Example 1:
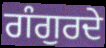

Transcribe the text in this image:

ਗੰਗੁਰਦੇ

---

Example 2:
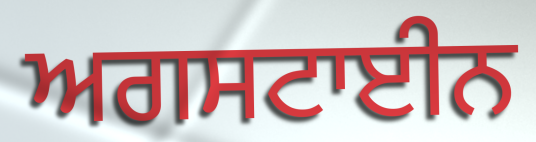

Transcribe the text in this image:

ਅਗਸਟਾਈਨ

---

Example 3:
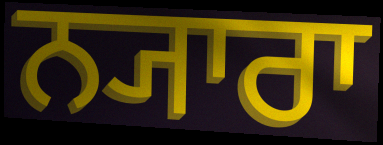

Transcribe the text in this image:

ਨ੍ਯਾਰਾ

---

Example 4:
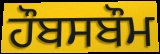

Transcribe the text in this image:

ਹੌਬਸਬੌਮ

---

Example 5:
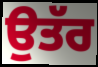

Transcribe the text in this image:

ਉਤੱਰ